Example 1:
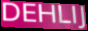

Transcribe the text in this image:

DEHLIJ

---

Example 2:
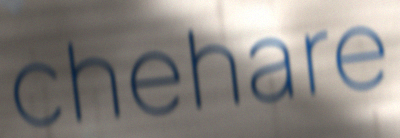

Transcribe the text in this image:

chehare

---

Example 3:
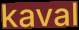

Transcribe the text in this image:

kaval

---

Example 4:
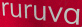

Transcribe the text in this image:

ruruva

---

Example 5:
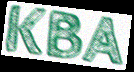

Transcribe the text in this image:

KBA